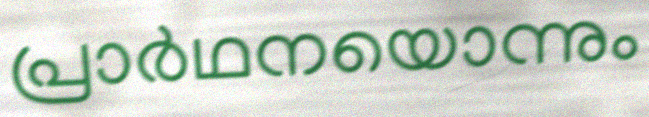
പ്രാർഥനയൊന്നും